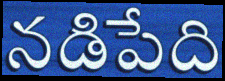
నడిపేది